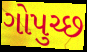
ગોપુચ્છ